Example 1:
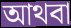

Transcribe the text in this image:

আথবা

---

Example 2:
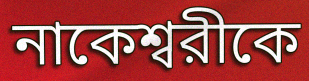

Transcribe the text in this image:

নাকেশ্বরীকে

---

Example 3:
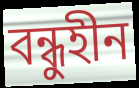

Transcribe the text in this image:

বন্ধুহীন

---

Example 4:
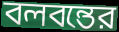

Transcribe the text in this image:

বলবন্তের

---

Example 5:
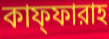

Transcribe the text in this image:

কাফ্ফারাহ